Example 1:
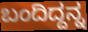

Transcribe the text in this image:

ಬಂದಿದ್ದನ್ನ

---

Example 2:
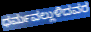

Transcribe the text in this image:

ಧರ್ಮವಲ್ಲುಳಿದವರ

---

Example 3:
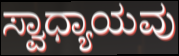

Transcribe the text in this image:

ಸ್ವಾಧ್ಯಾಯವು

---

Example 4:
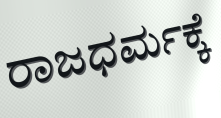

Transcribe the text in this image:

ರಾಜಧರ್ಮಕ್ಕೆ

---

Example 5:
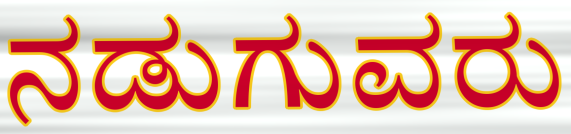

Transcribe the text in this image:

ನಡುಗುವರು